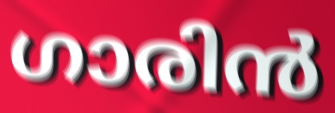
ഗാരിൻ